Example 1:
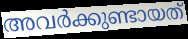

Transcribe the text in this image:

അവർക്കുണ്ടായത്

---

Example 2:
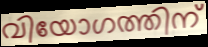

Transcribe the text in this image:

വിയോഗത്തിന്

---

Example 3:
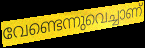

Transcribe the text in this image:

വേണ്ടെന്നുവെച്ചാണ്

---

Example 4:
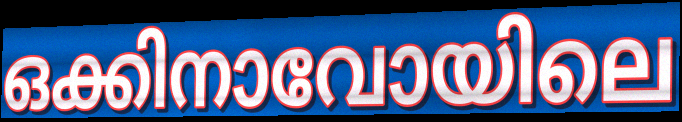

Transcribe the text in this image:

ഒക്കിനാവോയിലെ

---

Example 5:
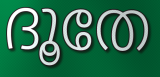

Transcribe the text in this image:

ദൂതേ